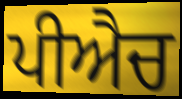
ਪੀਐਚ